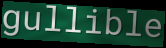
gullible